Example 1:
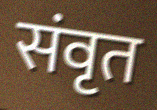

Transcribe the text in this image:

संवृत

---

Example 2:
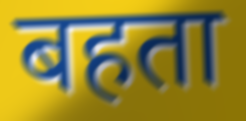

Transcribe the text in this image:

बहता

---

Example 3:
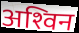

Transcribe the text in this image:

अश्विन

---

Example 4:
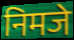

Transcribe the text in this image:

निमजे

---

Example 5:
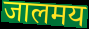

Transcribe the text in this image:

जालमय